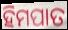
ହିମପାତ